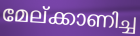
മേല്ക്കാണിച്ച